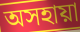
অসহায়া